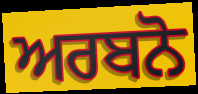
ਅਰਬਨੋ